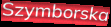
Szymborska